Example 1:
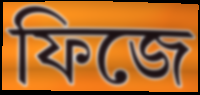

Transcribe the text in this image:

ফিজে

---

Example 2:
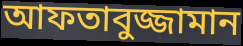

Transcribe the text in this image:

আফতাবুজ্জামান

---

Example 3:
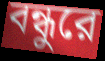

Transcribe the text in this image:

বন্ধুরে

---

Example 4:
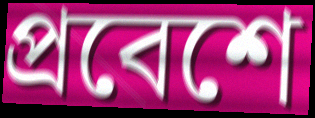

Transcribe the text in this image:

প্রবেশে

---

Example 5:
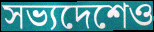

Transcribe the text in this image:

সভ্যদেশেও